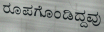
ರೂಪಗೊಂಡಿದ್ದವು